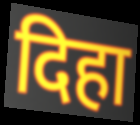
दिहा